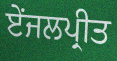
ਏਂਜਲਪ੍ਰੀਤ